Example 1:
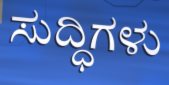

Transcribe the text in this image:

ಸುದ್ಧಿಗಳು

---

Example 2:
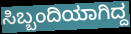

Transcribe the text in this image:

ಸಿಬ್ಬಂದಿಯಾಗಿದ್ದ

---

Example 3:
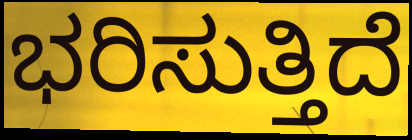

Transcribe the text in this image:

ಭರಿಸುತ್ತಿದೆ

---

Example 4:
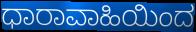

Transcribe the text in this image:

ಧಾರಾವಾಹಿಯಿಂದ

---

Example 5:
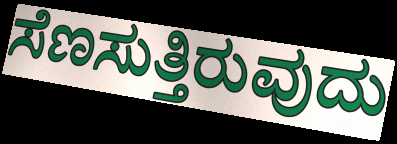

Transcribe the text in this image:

ಸೆಣಸುತ್ತಿರುವುದು